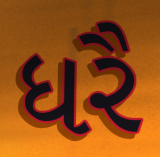
ધરૈ